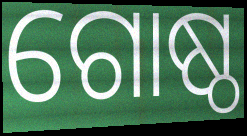
ଗୋଷ୍ଠ